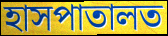
হাসপাতালত